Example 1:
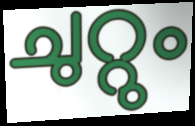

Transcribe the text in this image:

ചുറ്റും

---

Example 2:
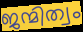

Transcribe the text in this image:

ജന്മിത്വം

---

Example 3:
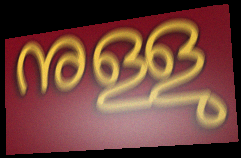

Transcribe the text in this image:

നുള്ളു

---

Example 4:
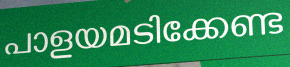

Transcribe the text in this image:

പാളയമടിക്കേണ്ട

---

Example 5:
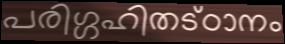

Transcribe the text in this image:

പരിഗ്ഗഹിതട്ഠാനം